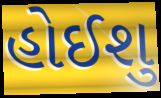
હોઈશુ